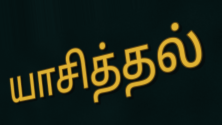
யாசித்தல்